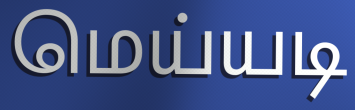
மெய்யடி